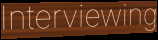
Interviewing